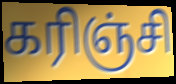
கரிஞ்சி